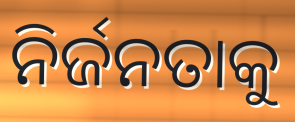
ନିର୍ଜନତାକୁ